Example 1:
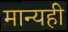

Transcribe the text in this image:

मान्यही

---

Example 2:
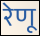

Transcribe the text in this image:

रेणू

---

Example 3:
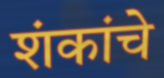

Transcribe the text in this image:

शंकांचे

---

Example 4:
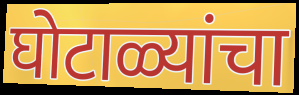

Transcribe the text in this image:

घोटाळ्यांचा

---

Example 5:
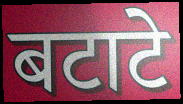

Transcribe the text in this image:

बटाटे